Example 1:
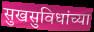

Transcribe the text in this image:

सुखसुविधांच्या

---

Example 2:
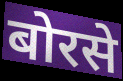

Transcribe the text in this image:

बोरसे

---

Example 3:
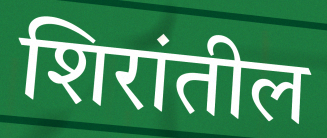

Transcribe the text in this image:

शिरांतील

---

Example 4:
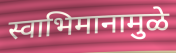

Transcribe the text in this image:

स्वाभिमानामुळे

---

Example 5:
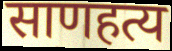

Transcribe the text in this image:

साणहत्य